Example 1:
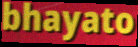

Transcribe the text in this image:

bhayato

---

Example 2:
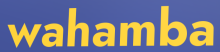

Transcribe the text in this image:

wahamba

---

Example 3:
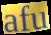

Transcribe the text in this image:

afu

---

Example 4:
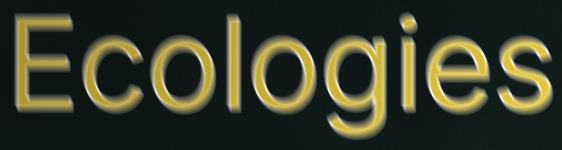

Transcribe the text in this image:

Ecologies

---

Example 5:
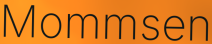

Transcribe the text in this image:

Mommsen